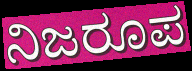
ನಿಜರೂಪ